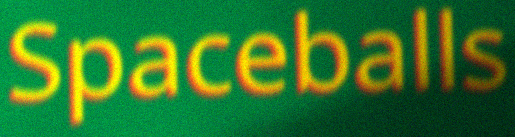
Spaceballs